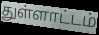
துள்ளாட்டம்